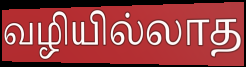
வழியில்லாத